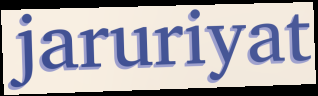
jaruriyat